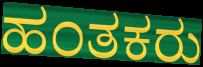
ಹಂತಕರು